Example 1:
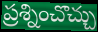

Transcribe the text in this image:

ప్రశ్నించొచ్చు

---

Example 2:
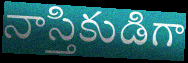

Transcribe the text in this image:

నాస్తికుడిగా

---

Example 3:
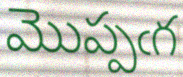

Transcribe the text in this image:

మొప్పఁగ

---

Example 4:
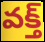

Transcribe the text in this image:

వక్త్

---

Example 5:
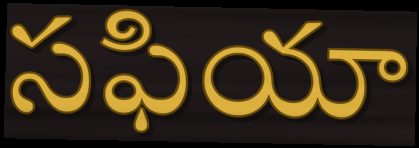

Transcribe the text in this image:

సఫియా